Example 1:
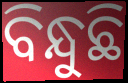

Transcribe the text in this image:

ବିନ୍ଧୁଛି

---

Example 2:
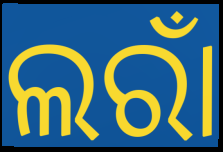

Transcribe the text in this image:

ଲରାଁ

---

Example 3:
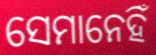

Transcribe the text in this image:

ସେମାନେହିଁ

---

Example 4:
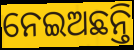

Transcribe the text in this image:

ନେଇଅଛନ୍ତି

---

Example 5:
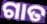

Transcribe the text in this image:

ଗାତ